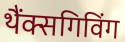
थैंक्सगिविंग